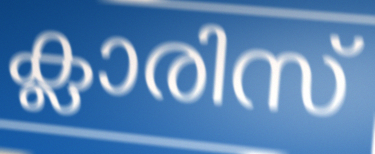
ക്ലാരിസ്